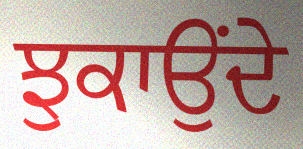
ਝੁਕਾਉੰਦੇ